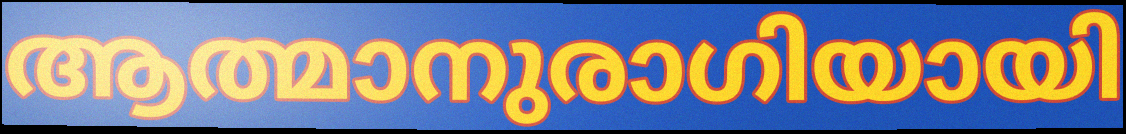
ആത്മാനുരാഗിയായി